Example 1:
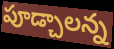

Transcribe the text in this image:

పూడ్చాలన్న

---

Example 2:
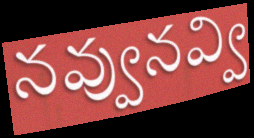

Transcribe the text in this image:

నవ్వునవ్వి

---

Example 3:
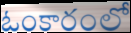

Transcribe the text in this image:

ఓంకారంలో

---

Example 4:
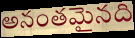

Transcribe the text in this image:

అనంతమైనది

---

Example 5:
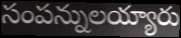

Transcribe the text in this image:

సంపన్నులయ్యారు